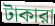
টাকারা